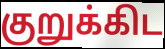
குறுக்கிட